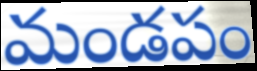
మండపం